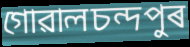
গোৱালচন্দপুৰ